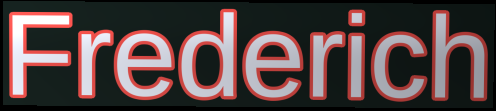
Frederich